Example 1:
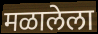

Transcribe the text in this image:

मळालेला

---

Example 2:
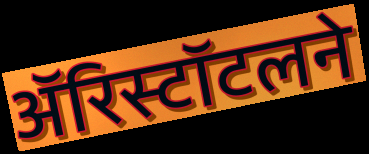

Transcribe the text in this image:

ॲरिस्टॉटलने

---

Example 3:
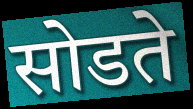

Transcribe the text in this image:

सोडते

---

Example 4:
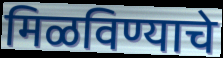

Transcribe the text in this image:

मिळविण्याचे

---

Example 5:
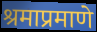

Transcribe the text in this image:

श्रमाप्रमाणे